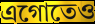
এগোতেও